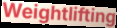
Weightlifting